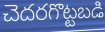
చెదరగొట్టబడి